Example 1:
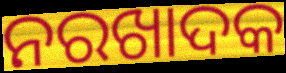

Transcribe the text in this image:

ନରଖାଦକ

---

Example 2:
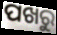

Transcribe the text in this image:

ପଖରୁ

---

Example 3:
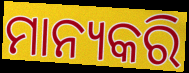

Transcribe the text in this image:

ମାନ୍ୟକରି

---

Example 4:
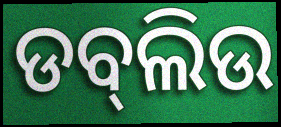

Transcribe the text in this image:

ଡବ୍‍ଲିଉ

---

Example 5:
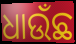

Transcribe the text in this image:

ଧାଉଁଛ